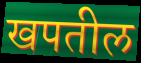
खपतील